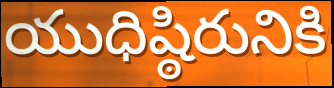
యుధిష్ఠిరునికి